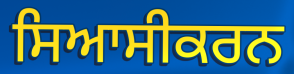
ਸਿਆਸੀਕਰਨ